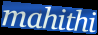
mahithi